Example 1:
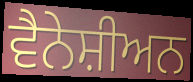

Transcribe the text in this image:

ਵੈਨੇਸ਼ੀਅਨ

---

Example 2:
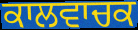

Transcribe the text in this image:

ਕਾਲਵਾਚਕ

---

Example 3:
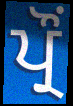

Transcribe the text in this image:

ਪ੍ਰੌਂ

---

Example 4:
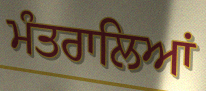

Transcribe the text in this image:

ਮੰਤਰਾਲਿਆਂ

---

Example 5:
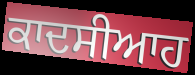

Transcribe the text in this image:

ਕਾਦਸੀਆਹ